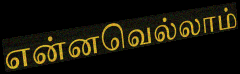
என்னவெல்லாம்